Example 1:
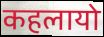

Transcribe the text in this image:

कहलायो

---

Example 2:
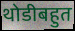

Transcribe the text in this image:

थोडीबहुत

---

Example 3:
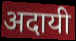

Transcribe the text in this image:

अदायी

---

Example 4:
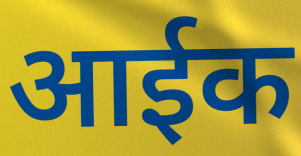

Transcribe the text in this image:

आईक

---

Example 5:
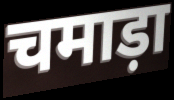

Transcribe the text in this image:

चमाड़ा